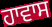
ਹਾਵਾਸ